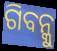
ଗିବନ୍କୁ